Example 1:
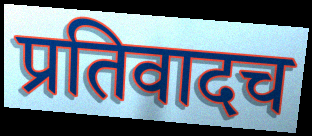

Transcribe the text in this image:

प्रतिवादच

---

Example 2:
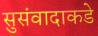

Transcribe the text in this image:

सुसंवादाकडे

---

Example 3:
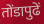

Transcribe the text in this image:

तोंडापुढें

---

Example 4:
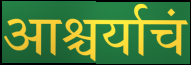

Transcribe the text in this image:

आश्चर्याचं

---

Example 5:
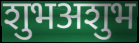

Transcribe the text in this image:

शुभअशुभ